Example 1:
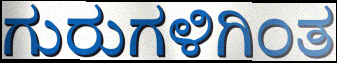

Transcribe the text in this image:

ಗುರುಗಳಿಗಿಂತ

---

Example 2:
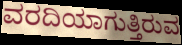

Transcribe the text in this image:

ವರದಿಯಾಗುತ್ತಿರುವ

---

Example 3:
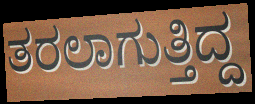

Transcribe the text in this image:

ತರಲಾಗುತ್ತಿದ್ದ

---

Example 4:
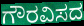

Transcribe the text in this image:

ಗೌರವಿಸದ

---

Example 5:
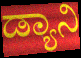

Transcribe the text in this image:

ಡ್ಯಾನಿ